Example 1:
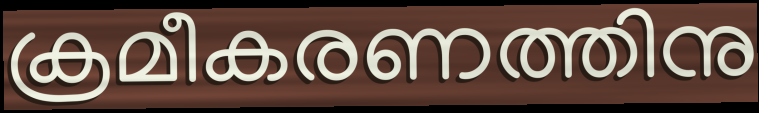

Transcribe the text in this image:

ക്രമീകരണത്തിനു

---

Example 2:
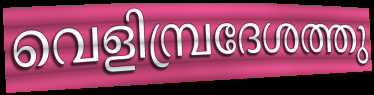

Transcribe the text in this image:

വെളിമ്പ്രദേശത്തു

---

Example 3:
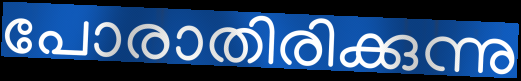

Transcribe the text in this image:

പോരാതിരിക്കുന്നു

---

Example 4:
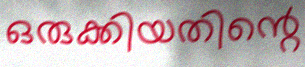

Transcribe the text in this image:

ഒരുക്കിയതിന്റെ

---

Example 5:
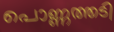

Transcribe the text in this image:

പൊണ്ണത്തടി